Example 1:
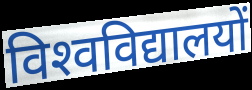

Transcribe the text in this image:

विश्‍वविद्यालयों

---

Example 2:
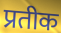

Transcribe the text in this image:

प्रतीक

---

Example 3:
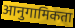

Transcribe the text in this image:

आनुगामिकता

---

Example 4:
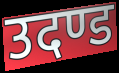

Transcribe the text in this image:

उदण्ड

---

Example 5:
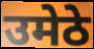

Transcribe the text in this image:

उमेठे